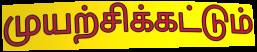
முயற்சிக்கட்டும்